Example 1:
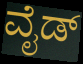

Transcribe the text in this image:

ವೈಡ್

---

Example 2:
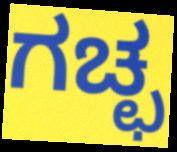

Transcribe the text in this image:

ಗಚ್ಛ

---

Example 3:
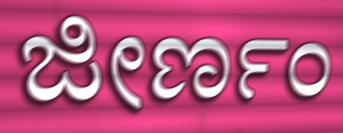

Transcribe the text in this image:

ಜೀರ್ಣಂ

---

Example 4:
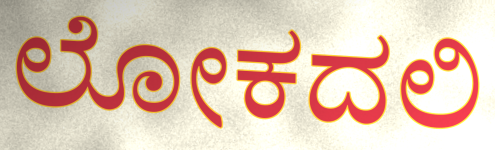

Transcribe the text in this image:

ಲೋಕದಲಿ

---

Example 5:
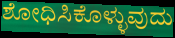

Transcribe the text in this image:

ಶೋಧಿಸಿಕೊಳ್ಳುವುದು